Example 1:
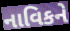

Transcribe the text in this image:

નાવિકને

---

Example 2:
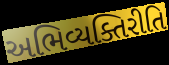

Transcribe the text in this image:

અભિવ્યક્તિરીતિ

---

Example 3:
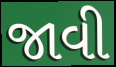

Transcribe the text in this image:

જાવી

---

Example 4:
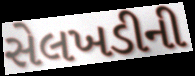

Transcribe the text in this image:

સેલખડીની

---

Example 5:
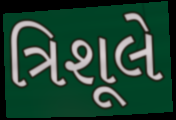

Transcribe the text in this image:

ત્રિશૂલે